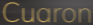
Cuaron